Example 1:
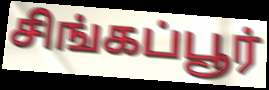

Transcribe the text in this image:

சிங்கப்பூர்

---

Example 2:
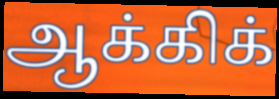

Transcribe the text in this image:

ஆக்கிக்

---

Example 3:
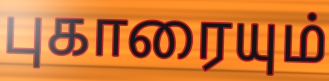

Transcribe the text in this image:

புகாரையும்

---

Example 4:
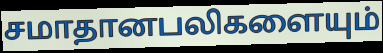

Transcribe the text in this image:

சமாதானபலிகளையும்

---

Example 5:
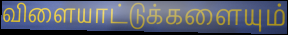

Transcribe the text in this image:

விளையாட்டுக்களையும்